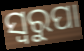
ସ୍ୱରୁପା